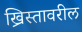
ख्रिस्तावरील